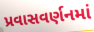
પ્રવાસવર્ણનમાં